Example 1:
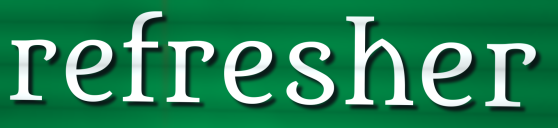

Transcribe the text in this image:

refresher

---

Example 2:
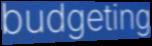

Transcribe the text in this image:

budgeting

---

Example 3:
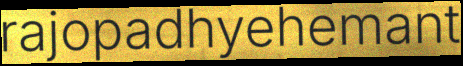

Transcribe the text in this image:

rajopadhyehemant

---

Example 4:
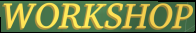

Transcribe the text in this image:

WORKSHOP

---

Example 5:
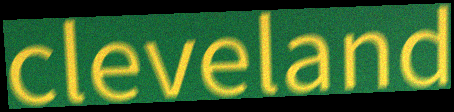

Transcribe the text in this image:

cleveland